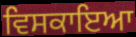
ਵਿਸਕਾਇਆ